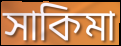
সাকিমা